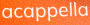
acappella